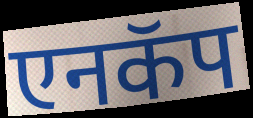
एनकॅप